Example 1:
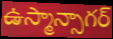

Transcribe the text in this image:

ఉస్మాన్సాగర్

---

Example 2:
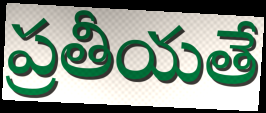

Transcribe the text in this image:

ప్రతీయతే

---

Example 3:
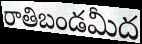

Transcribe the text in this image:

రాతిబండమీద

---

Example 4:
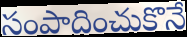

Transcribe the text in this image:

సంపాదించుకొనే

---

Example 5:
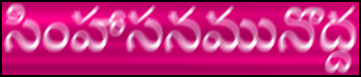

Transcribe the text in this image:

సింహాసనమునొద్ద